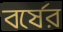
বর্ষের